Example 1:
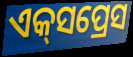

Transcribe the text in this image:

ଏକ୍‌ସପ୍ରେସ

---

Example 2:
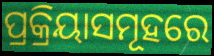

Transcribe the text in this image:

ପ୍ରକ୍ରିୟାସମୂହରେ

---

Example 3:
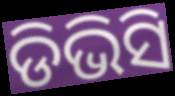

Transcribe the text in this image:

ଡିଭିସି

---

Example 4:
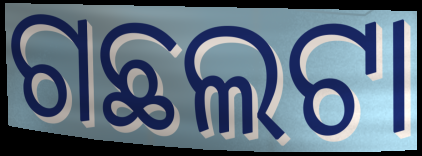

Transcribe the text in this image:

ଗଛଲଟା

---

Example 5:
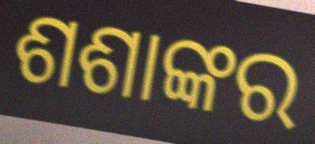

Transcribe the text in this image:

ଶଶାଙ୍କର